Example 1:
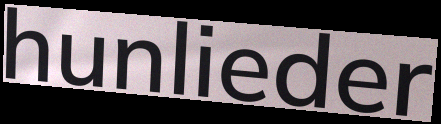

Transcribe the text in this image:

hunlieder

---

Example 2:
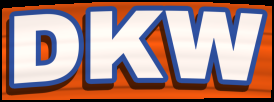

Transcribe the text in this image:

DKW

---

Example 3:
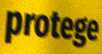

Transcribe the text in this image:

protege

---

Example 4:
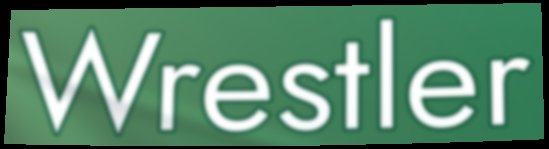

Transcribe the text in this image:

Wrestler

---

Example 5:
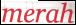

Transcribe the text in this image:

merah